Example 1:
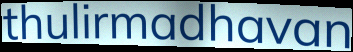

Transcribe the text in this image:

thulirmadhavan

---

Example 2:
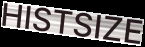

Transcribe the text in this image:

HISTSIZE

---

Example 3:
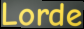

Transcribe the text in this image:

Lorde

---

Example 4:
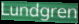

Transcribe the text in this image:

Lundgren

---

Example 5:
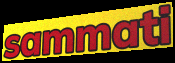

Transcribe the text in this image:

sammati